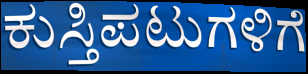
ಕುಸ್ತಿಪಟುಗಳಿಗೆ